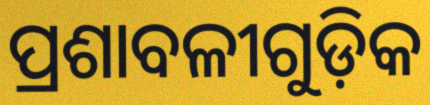
ପ୍ରଶାବଳୀଗୁଡ଼ିକ